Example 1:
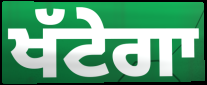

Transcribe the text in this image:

ਖੱਟੇਗਾ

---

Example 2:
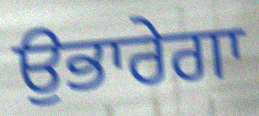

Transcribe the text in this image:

ਉਭਾਰੇਗਾ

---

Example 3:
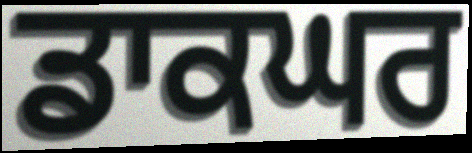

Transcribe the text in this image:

ਡਾਕਘਰ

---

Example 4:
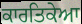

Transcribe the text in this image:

ਕਾਰਤਿਕੇਆ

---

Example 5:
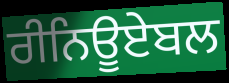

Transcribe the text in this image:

ਰੀਨਿਊਏਬਲ